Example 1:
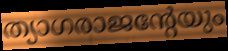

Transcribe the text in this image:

ത്യാഗരാജന്റേയും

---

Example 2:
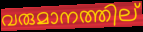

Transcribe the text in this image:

വരുമാനത്തില്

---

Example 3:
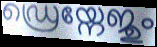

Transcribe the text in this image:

ഡ്രെയ്നേജും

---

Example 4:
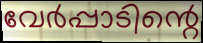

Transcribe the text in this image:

വേർപ്പാടിന്റെ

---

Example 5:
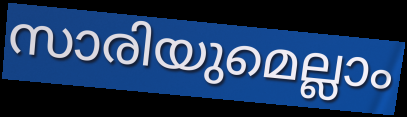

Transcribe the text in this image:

സാരിയുമെല്ലാം